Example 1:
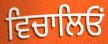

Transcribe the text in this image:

ਵਿਚਾਲਿਓਂ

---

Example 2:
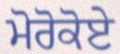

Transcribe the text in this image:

ਮੋਰੋਕੋਏ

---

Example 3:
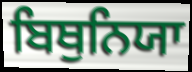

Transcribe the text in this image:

ਬਿਥੁਨਿਯਾ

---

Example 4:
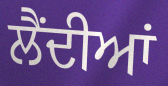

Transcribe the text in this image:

ਲੈਂਦੀਆਂ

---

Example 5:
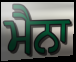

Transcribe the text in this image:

ਮੈਨਾ